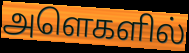
அளெகளில்